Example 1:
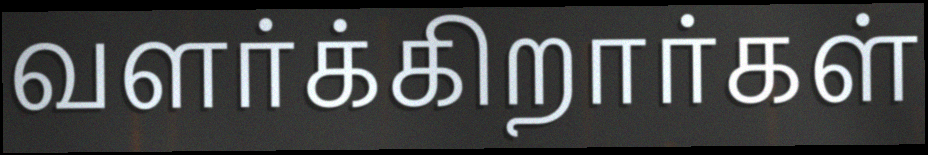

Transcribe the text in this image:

வளர்க்கிறார்கள்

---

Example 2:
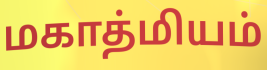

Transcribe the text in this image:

மகாத்மியம்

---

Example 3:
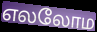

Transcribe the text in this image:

எலலோம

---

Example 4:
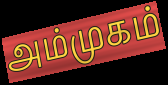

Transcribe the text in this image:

அம்முகம்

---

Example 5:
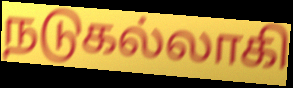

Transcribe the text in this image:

நடுகல்லாகி